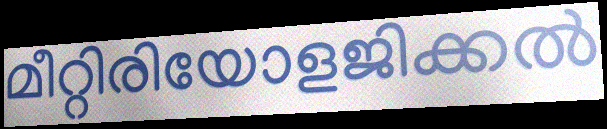
മീറ്റിരിയോളജിക്കൽ